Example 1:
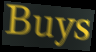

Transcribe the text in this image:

Buys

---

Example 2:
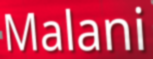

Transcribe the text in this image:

Malani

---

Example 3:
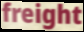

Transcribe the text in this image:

freight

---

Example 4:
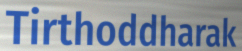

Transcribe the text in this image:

Tirthoddharak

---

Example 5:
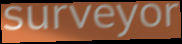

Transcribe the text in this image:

surveyor